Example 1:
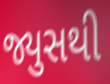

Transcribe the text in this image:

જ્યુસથી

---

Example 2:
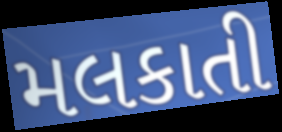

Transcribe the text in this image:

મલકાતી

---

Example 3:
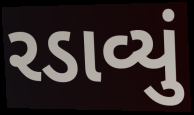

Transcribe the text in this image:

રડાવ્યું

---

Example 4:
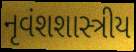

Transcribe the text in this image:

નૃવંશશાસ્ત્રીય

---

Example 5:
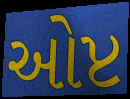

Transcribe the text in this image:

ઓપ્ટ